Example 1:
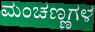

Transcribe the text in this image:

ಮಂಚಣ್ಣಗಳ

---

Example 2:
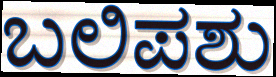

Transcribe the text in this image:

ಬಲಿಪಶು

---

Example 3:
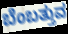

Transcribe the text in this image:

ಬೆಂಬತ್ತುವ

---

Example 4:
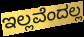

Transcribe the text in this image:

ಇಲ್ಲವೆಂದಲ್ಲ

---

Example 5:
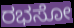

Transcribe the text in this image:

ರಭಸೋ